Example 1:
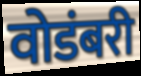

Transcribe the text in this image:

वोडंबरी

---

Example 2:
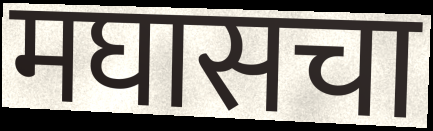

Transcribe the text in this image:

मघासचा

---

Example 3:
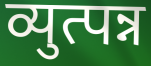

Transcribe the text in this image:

व्युत्पन्न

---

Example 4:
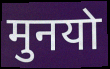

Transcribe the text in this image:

मुनयो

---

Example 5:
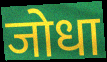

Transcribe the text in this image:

जोधा